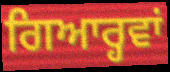
ਗਿਆਰ੍ਹਵਾਂ